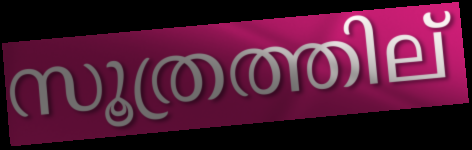
സൂത്രത്തില്